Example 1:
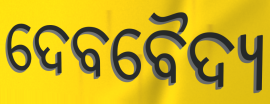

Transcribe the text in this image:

ଦେବବୈଦ୍ୟ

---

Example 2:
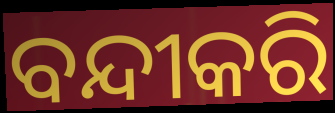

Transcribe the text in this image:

ବନ୍ଦୀକରି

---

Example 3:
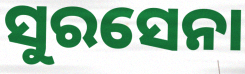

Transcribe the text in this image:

ସୁରସେନା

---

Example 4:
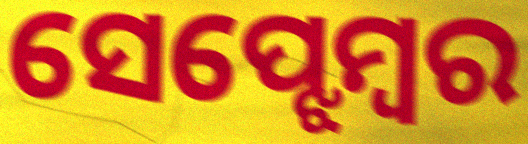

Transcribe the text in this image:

ସେପ୍ଝେମ୍ବର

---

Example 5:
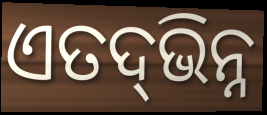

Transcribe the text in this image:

ଏତଦ୍‌ଭିନ୍ନ